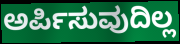
ಅರ್ಪಿಸುವುದಿಲ್ಲ